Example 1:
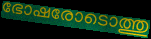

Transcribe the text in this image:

ഭോഷരോടൊത്തു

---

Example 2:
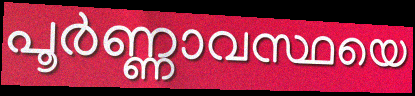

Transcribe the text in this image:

പൂർണ്ണാവസ്ഥയെ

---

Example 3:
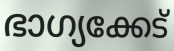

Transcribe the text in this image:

ഭാഗ്യക്കേട്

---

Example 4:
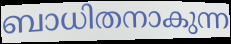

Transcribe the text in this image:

ബാധിതനാകുന്ന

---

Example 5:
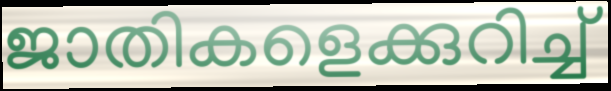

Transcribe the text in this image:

ജാതികളെക്കുറിച്ച്